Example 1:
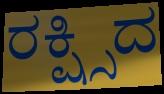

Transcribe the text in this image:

ರಕ್ಷ್ಸಿದ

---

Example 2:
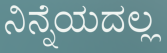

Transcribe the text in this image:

ನಿನ್ನೆಯದಲ್ಲ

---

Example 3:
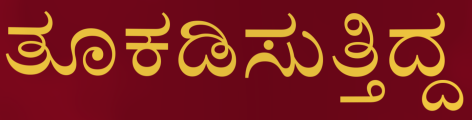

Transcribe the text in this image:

ತೂಕಡಿಸುತ್ತಿದ್ದ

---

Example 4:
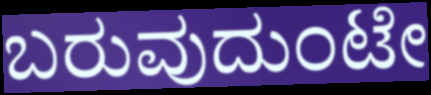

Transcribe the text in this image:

ಬರುವುದುಂಟೇ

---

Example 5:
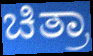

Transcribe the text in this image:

ಚಿತ್ರಾ